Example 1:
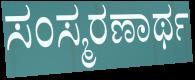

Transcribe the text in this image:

ಸಂಸ್ಮರಣಾರ್ಥ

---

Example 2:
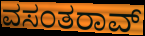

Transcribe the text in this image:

ವಸಂತರಾವ್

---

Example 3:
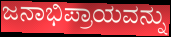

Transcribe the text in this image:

ಜನಾಭಿಪ್ರಾಯವನ್ನು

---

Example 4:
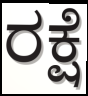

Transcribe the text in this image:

ರಕ್ಷೆ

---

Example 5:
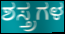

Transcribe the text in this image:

ಶಸ್ತ್ರಗಳ